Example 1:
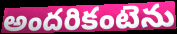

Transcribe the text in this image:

అందరికంటెను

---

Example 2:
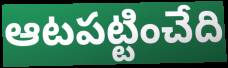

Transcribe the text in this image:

ఆటపట్టించేది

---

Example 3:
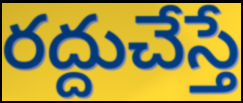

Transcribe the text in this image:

రద్దుచేస్తే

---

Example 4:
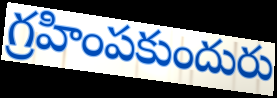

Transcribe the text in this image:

గ్రహింపకుందురు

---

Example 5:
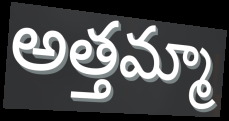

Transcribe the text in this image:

అత్తమ్మా